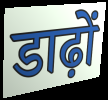
डाढ़ों